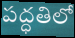
పద్ధతిలో